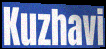
Kuzhavi